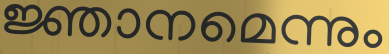
ജ്ഞാനമെന്നും